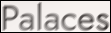
Palaces